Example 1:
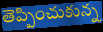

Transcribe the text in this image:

తెప్పించుకున్న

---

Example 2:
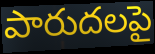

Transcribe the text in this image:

పారుదలపై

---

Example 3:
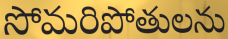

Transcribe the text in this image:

సోమరిపోతులను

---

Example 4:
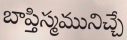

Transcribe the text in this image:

బాప్తిస్మమునిచ్చే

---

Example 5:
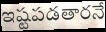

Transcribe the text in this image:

ఇష్టపడతారనే